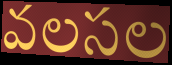
వలసల